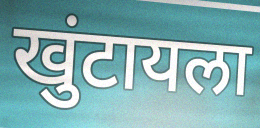
खुंटायला